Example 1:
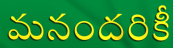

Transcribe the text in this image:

మనందరికీ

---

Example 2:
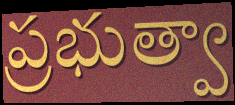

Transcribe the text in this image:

ప్రభుత్వా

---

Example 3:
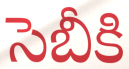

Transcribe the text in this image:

సెబీకి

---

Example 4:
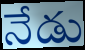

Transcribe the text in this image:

నేడు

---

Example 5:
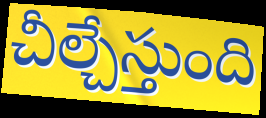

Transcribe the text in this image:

చీల్చేస్తుంది